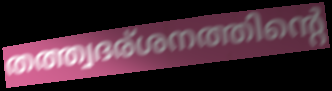
തത്ത്വദര്ശനത്തിന്റെ